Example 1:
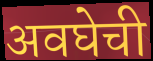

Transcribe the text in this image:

अवघेची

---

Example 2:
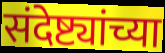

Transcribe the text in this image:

संदेष्ट्यांच्या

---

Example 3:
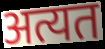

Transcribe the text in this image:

अत्यत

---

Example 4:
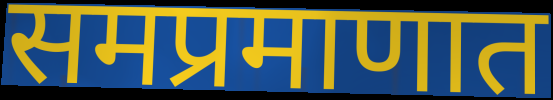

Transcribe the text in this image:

समप्रमाणात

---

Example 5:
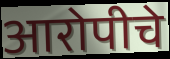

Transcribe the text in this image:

आरोपीचे